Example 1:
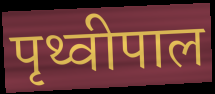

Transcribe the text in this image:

पृथ्वीपाल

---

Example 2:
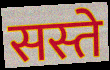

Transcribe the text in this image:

सस्‍ते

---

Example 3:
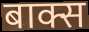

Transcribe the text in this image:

बाक्स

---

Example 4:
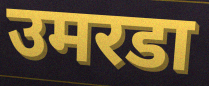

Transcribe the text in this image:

उमरडा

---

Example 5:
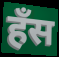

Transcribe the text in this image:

हँस